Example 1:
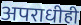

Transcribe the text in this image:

अपराधीही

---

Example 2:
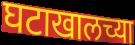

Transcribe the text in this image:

घटाखालच्या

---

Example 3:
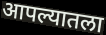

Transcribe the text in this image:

आपल्यातला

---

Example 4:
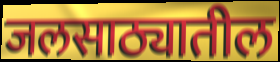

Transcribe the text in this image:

जलसाठ्यातील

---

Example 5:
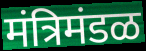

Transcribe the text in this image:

मंत्रिमंडळ